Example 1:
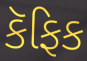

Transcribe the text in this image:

કૅફિક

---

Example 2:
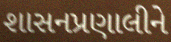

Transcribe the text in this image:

શાસનપ્રણાલીને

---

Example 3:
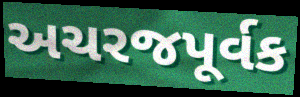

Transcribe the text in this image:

અચરજપૂર્વક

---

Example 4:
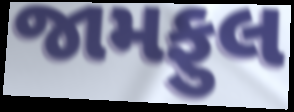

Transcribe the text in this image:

જામફુલ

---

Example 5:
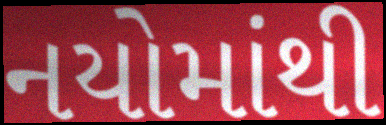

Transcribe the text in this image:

નયોમાંથી